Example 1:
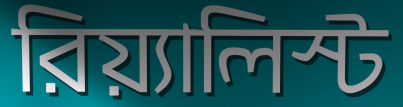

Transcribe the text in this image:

রিয়্যালিস্ট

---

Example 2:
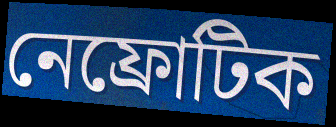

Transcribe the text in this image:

নেফ্রোটিক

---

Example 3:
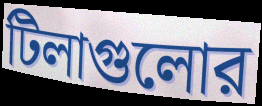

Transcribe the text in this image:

টিলাগুলোর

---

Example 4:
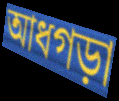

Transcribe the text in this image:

আধগড়া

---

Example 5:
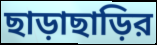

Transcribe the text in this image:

ছাড়াছাড়ির